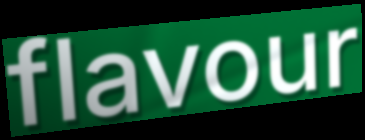
flavour